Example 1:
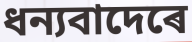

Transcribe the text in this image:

ধন্যবাদেৰে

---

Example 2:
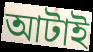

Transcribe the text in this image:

আটাই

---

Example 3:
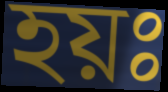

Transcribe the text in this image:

হয়ঃ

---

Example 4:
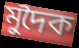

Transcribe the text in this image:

মুদৈক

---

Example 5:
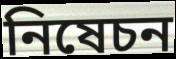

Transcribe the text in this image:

নিষেচন